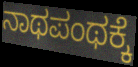
ನಾಥಪಂಥಕ್ಕೆ